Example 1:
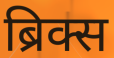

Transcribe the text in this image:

ब्रिक्स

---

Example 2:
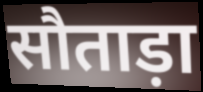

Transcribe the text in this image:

सौताड़ा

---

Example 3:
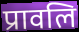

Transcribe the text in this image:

प्रावलि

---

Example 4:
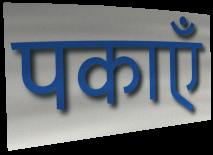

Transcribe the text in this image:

पकाएँ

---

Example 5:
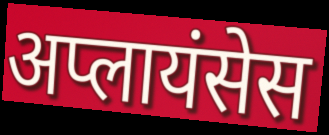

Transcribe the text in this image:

अप्लायंसेस